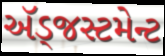
ઍડ્જસ્ટમેન્ટ